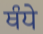
ਥੰਧੇ